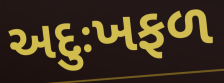
અદુઃખફળ